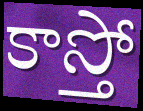
కాస్తో